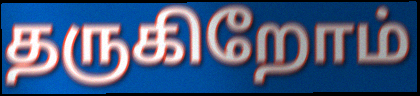
தருகிறோம்